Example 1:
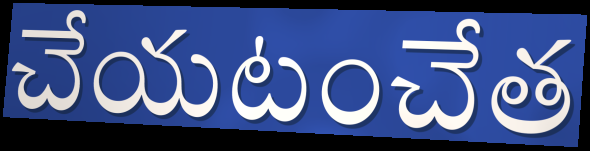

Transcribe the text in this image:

చేయటంచేత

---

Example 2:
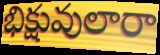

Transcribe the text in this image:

భిక్షువులారా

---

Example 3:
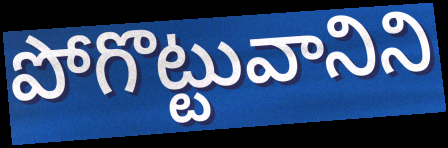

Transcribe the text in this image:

పోగొట్టువానిని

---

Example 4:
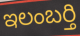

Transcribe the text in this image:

ఇలంబర్తి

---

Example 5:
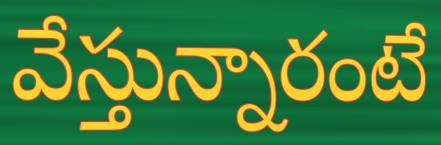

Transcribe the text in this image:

వేస్తున్నారంటే